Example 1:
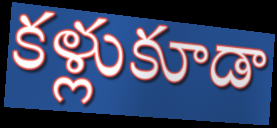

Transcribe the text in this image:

కళ్లుకూడా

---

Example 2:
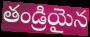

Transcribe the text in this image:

తండ్రియైన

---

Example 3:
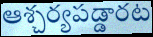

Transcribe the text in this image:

ఆశ్చర్యపడ్డారట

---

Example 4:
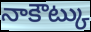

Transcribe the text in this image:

నాకౌట్కు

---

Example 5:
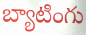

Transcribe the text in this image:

బ్యాటింగు